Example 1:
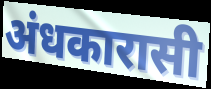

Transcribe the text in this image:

अंधकारासी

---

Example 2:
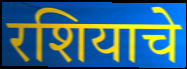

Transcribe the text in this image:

रशियाचे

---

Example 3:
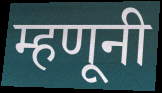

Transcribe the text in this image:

म्हणूनी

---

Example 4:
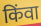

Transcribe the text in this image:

किंवा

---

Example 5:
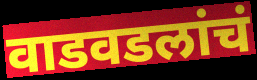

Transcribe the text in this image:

वाडवडलांचं